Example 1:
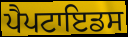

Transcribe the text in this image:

ਪੈਪਟਾਇਡਸ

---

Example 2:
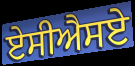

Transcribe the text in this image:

ਏਸੀਐਸਏ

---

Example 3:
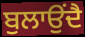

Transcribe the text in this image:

ਬੁਲਾਉਂਦੈ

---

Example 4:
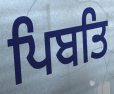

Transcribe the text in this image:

ਪਿਬਤਿ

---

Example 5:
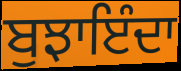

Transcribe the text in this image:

ਬੁਝਾਇੰਦਾ